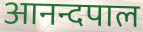
आनन्दपाल